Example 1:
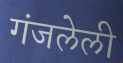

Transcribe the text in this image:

गंजलेली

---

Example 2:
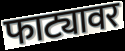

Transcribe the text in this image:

फाट्यावर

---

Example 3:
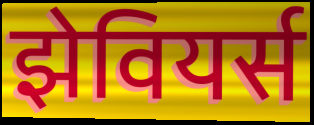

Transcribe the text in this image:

झेवियर्स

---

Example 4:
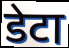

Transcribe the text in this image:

डेटा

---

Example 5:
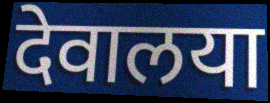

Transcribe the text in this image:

देवालया